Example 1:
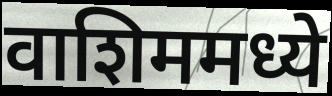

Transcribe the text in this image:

वाशिममध्ये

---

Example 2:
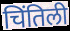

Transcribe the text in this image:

चिंतिली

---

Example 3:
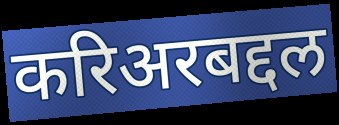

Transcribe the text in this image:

करिअरबद्दल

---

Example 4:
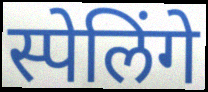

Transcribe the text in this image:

स्पेलिंगे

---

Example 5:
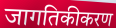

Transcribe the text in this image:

जागतिकीकरण